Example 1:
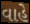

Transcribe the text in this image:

વાહે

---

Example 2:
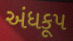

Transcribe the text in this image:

અંધકૂપ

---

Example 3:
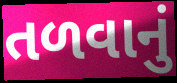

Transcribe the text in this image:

તળવાનું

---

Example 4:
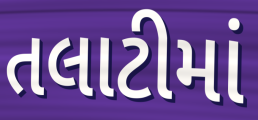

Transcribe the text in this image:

તલાટીમાં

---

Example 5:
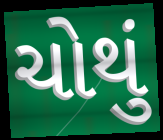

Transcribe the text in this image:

ચોથું